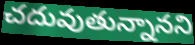
చదువుతున్నానని